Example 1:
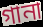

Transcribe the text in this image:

গানা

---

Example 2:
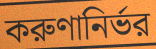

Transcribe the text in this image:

করুণানির্ভর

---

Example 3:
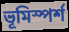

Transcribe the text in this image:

ভূমিস্পর্শ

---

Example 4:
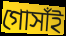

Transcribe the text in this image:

গোসাঁই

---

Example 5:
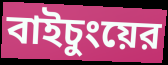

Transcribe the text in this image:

বাইচুংয়ের